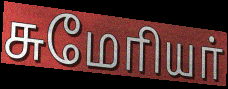
சுமேரியர்